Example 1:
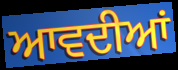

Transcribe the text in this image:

ਆਵਦੀਆਂ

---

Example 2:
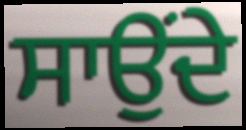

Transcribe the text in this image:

ਸਾਉਂਦੇ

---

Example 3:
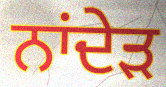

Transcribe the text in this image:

ਨਾਂਦੇੜ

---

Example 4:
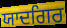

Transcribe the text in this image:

ਯਾਦਗਿਰ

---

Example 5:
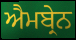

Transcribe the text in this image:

ਐਮਬ੍ਰੇਨ